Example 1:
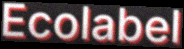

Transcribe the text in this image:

Ecolabel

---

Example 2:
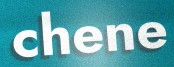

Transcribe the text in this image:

chene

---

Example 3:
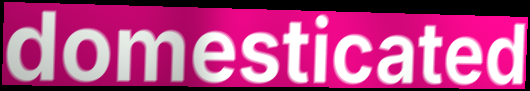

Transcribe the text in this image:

domesticated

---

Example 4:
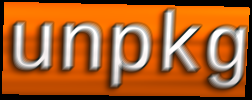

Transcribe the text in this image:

unpkg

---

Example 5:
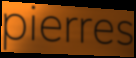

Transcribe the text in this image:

pierres